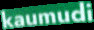
kaumudi